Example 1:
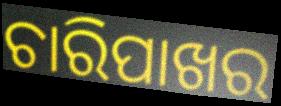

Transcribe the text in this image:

ଚାରିପାଖର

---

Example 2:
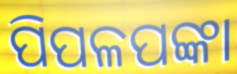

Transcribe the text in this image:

ପିପଳପଙ୍କା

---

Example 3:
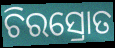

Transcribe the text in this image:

ଚିରସ୍ରୋତ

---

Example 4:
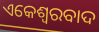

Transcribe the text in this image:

ଏକେଶ୍ୱରବାଦ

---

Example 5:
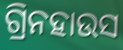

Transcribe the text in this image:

ଗ୍ରିନହାଉସ